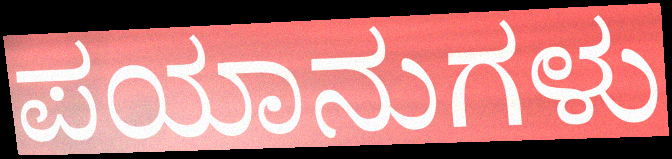
ಪಯಾನುಗಳು